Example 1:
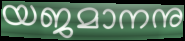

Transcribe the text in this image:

യജമാനനു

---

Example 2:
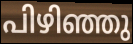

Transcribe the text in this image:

പിഴിഞ്ഞു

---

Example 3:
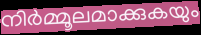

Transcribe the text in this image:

നിർമ്മൂലമാക്കുകയും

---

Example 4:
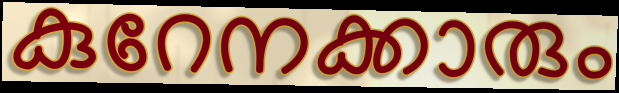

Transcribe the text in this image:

കുറേനക്കാരും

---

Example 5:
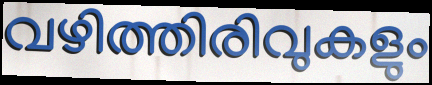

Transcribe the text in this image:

വഴിത്തിരിവുകളും